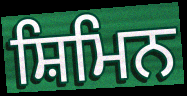
ਸ਼ਿਮਿਨ